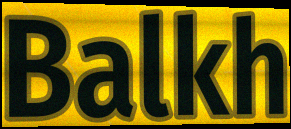
Balkh